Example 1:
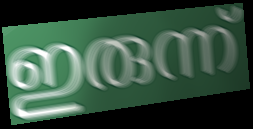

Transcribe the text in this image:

ഇരുന്ന്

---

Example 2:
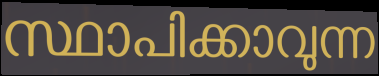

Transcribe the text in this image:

സ്ഥാപിക്കാവുന്ന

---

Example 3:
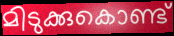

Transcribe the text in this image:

മിടുക്കുകൊണ്ട്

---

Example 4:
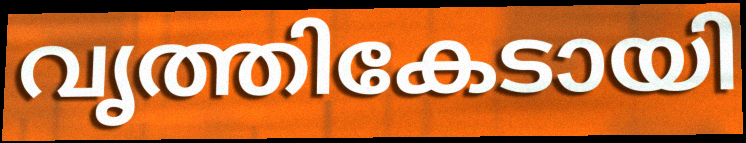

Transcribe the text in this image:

വൃത്തികേടായി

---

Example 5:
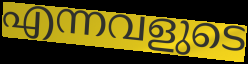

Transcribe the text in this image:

എന്നവളുടെ